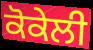
ਕੋਕੇਲੀ